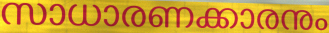
സാധാരണക്കാരനും